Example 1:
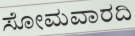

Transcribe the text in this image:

ಸೋಮವಾರದಿ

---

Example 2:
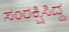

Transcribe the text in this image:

ಸಂರಕ್ಷಿಸಿದ್ದ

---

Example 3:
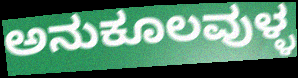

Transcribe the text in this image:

ಅನುಕೂಲವುಳ್ಳ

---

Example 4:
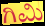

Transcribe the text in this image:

ಗಿಮಿ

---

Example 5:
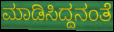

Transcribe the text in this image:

ಮಾಡಿಸಿದ್ದನಂತೆ